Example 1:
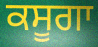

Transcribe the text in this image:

ਕਸੂਗਾ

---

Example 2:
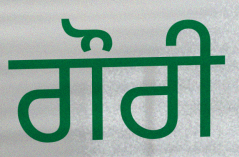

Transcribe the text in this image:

ਗੌਰੀ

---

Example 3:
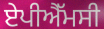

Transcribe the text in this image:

ਏਪੀਐੱਮਸੀ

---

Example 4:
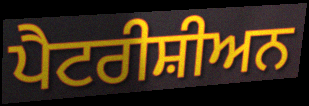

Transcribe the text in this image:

ਪੈਟਰੀਸ਼ੀਅਨ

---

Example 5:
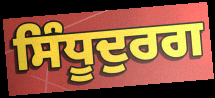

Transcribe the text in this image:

ਸਿੰਧੂਦੁਰਗ